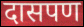
दासपण